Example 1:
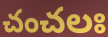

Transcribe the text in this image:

చంచలః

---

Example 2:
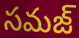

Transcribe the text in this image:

సమజ్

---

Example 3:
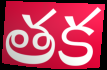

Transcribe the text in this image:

తక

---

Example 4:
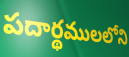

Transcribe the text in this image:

పదార్థములలోని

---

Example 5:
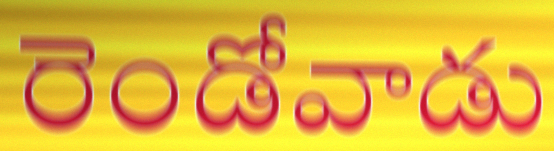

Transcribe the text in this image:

రెండోవాడు